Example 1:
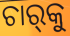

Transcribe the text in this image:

ଚାର୍‌କୁ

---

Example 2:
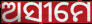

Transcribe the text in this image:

ଅସୀମେ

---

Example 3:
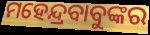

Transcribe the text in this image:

ମହେନ୍ଦ୍ରବାବୁଙ୍କର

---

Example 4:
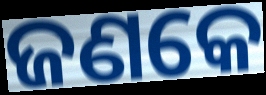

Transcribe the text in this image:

ଜଣକେ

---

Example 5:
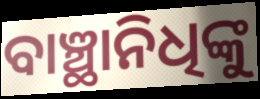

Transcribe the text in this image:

ବାଞ୍ଛାନିଧିଙ୍କୁ